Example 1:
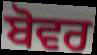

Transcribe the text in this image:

ਬੋਵਰ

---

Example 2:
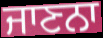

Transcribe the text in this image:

ਜਾਣਨਾ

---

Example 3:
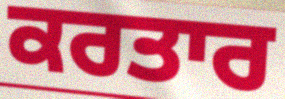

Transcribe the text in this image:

ਕਰਤਾਰ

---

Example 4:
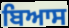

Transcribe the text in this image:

ਬਿਆਸ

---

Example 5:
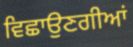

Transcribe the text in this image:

ਵਿਛਾਉਣਗੀਆਂ